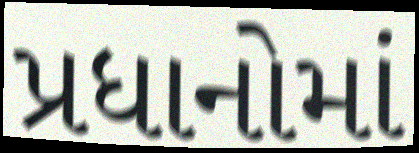
પ્રધાનોમાં